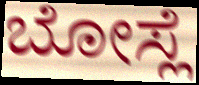
ಬೋಸ್ಲೆ